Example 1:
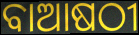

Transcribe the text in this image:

ବାଆଷଠୀ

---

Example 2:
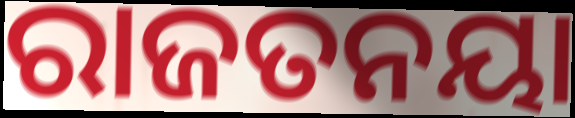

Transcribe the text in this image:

ରାଜତନୟା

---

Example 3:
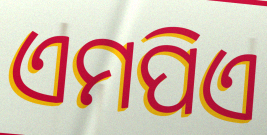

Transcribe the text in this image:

ଏମପିଏ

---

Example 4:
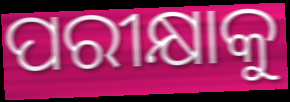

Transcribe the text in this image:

ପରୀକ୍ଷାକୁ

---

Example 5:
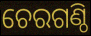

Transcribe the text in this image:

ଚେରଗଣ୍ଠି